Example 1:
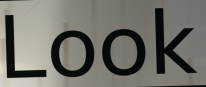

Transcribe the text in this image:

Look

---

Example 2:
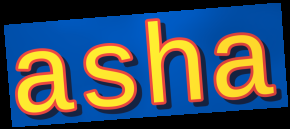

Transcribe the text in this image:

asha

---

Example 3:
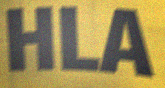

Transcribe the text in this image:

HLA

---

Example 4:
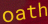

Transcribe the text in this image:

oath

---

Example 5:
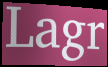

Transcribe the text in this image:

Lagr